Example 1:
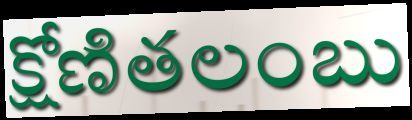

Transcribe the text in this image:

క్షోణితలంబు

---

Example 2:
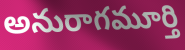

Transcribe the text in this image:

అనురాగమూర్తి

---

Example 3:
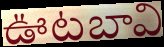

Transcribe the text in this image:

ఊటబావి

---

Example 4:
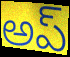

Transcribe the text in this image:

అప్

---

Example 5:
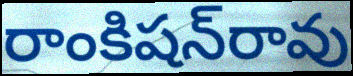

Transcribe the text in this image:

రాంకిషన్‌రావు